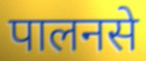
पालनसे